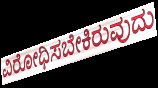
ವಿರೋಧಿಸಬೇಕಿರುವುದು